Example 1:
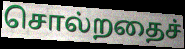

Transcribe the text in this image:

சொல்றதைச்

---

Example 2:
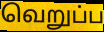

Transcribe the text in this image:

வெறுப்ப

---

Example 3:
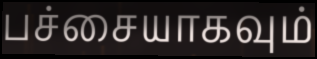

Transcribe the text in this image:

பச்சையாகவும்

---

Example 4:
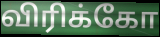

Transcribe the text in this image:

விரிக்கோ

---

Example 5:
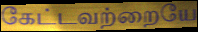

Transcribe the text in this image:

கேட்டவற்றையே